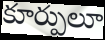
కూర్పులూ